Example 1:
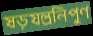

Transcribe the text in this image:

ষড়যন্ত্রনিপুণ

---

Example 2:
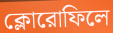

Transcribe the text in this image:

ক্লোরোফিলে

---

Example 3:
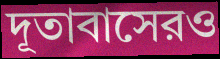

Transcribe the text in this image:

দূতাবাসেরও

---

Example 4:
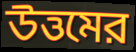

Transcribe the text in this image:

উত্তমের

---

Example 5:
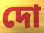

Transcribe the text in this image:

দো